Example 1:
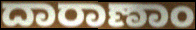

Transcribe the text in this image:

ದಾರಾಣಾಂ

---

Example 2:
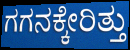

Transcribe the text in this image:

ಗಗನಕ್ಕೇರಿತ್ತು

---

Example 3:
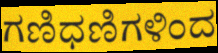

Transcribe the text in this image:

ಗಣಿಧಣಿಗಳಿಂದ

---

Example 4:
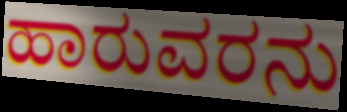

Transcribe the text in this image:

ಹಾರುವರನು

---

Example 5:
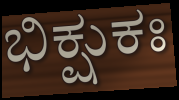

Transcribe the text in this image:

ಭಿಕ್ಷುಕಃ